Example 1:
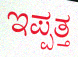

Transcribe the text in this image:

ಇಪ್ಪತ್ತ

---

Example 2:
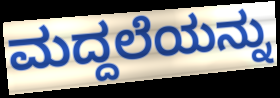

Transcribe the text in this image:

ಮದ್ದಲೆಯನ್ನು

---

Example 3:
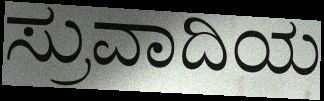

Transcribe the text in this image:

ಸ್ರುವಾದಿಯ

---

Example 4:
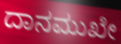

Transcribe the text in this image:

ದಾನಮುಖೇ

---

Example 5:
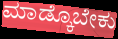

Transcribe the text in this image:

ಮಾಡ್ಕೊಬೇಕು